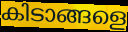
കിടാങ്ങളെ